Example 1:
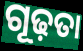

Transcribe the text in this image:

ଗୂଢ଼ତା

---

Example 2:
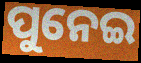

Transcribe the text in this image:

ପୁନେଇ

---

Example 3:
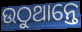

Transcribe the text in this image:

ଉଠୁଥାନ୍ତେ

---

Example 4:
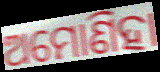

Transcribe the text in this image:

ଅମୋଣିହା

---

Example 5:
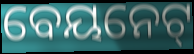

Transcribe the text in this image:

ବେୟନେଟ୍